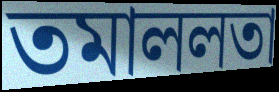
তমাললতা